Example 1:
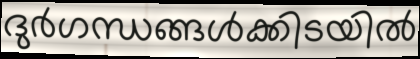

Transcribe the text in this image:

ദുർഗന്ധങ്ങൾക്കിടയിൽ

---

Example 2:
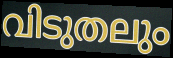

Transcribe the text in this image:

വിടുതലും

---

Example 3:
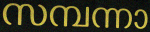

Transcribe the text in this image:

സമ്പന്നാ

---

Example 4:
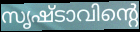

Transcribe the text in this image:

സൃഷ്ടാവിന്റെ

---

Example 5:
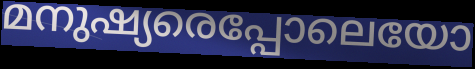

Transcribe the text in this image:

മനുഷ്യരെപ്പോലെയോ